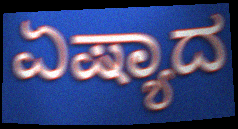
ಏಷ್ಯಾದ